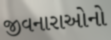
જીવનારાઓનો